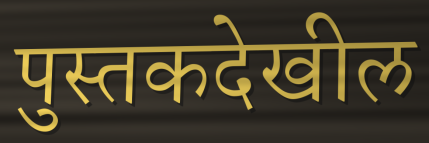
पुस्तकदेखील